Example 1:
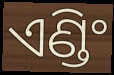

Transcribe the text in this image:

ଏଣ୍ଡିଂ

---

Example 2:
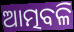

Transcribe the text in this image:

ଆତ୍ମବଳି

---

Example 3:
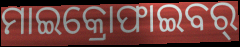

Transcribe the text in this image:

ମାଇକ୍ରୋଫାଇବର୍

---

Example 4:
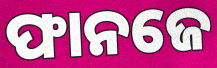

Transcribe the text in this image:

ଫାନଜେ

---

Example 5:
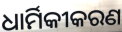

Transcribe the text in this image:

ଧାର୍ମିକୀକରଣ